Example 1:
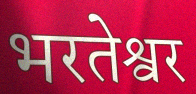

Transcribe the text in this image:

भरतेश्वर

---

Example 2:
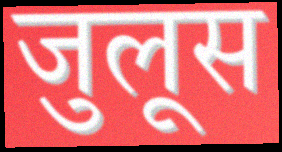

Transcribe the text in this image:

जुलूस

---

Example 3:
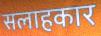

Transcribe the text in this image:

सलाहकार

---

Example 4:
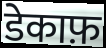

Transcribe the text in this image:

डेकाफ़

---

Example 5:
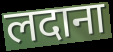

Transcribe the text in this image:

लदाना